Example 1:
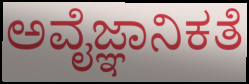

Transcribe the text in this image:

ಅವೈಜ್ಞಾನಿಕತೆ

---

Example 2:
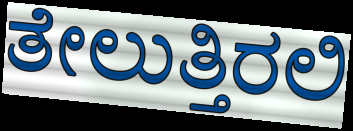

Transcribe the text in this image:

ತೇಲುತ್ತಿರಲಿ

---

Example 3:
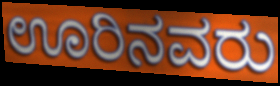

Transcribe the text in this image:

ಊರಿನವರು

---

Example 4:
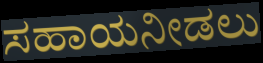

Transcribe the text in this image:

ಸಹಾಯನೀಡಲು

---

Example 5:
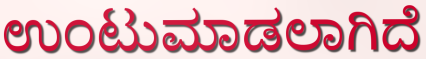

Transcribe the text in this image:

ಉಂಟುಮಾಡಲಾಗಿದೆ